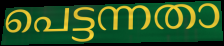
പെട്ടന്നതാ